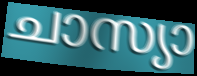
ചാസ്യാ